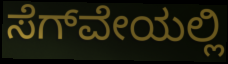
ಸೆಗ್‌ವೇಯಲ್ಲಿ